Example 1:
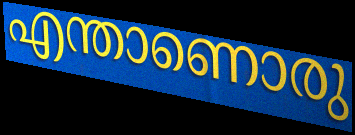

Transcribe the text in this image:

എന്താണൊരു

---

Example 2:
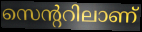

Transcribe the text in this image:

സെന്ററിലാണ്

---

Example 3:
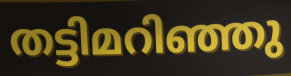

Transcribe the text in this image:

തട്ടിമറിഞ്ഞു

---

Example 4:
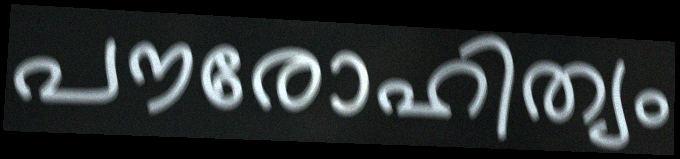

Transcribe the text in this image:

പൗരോഹിത്യം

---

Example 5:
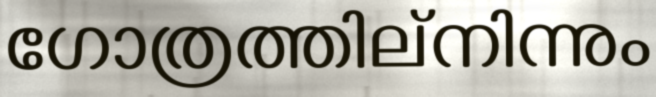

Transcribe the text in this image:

ഗോത്രത്തില്നിന്നും